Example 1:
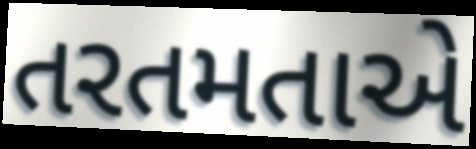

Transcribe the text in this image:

તરતમતાએ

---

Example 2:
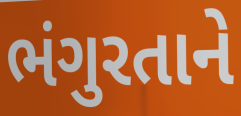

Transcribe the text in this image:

ભંગુરતાને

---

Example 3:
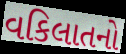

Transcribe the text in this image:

વકિલાતનો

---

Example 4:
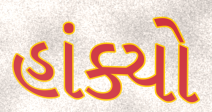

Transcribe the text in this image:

હાંક્યો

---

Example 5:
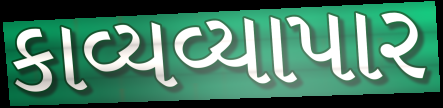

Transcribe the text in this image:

કાવ્યવ્યાપાર